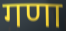
गणा